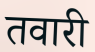
तवारी